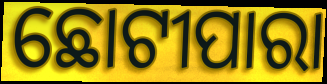
ଛୋଟୀପାରା